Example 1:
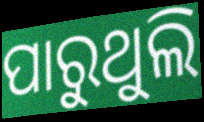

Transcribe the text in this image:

ପାରୁଥୁଲି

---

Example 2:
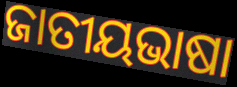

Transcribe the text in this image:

ଜାତୀୟଭାଷା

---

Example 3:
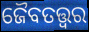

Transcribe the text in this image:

ଜୈବତତ୍ତ୍ୱର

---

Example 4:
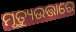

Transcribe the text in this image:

ମୃତ୍ୟୁଉତ୍ତାରେ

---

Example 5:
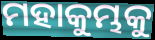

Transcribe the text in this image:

ମହାକୁମ୍ଭକୁ